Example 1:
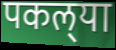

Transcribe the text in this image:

पकल्या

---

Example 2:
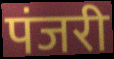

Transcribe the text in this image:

पंजरी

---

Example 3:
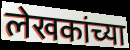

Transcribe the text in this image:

लेखकांच्या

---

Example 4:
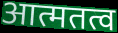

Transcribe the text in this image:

आत्मतत्व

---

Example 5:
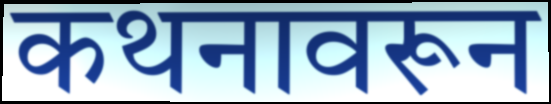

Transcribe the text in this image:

कथनावरून